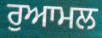
ਰੁਆਮਲ